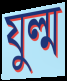
যুল্ম